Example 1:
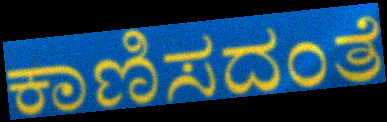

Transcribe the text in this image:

ಕಾಣಿಸದಂತೆ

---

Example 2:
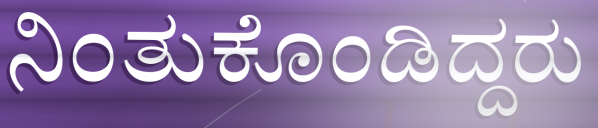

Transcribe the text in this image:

ನಿಂತುಕೊಂಡಿದ್ದರು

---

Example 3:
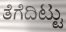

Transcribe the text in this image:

ತೆಗೆದಿಟ್ಟು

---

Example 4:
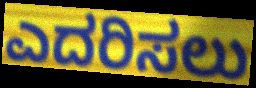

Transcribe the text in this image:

ಎದರಿಸಲು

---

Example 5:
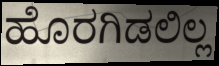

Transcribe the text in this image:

ಹೊರಗಿಡಲಿಲ್ಲ